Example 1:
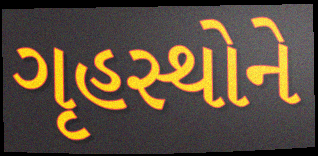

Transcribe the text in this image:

ગૃહસ્થોને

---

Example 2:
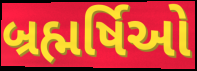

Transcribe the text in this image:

બ્રહ્મર્ષિઓ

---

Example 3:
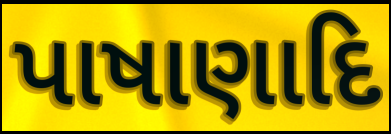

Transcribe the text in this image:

પાષાણાદિ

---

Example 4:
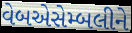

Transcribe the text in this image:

વેબએસેમ્બલીને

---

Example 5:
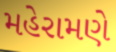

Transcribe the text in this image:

મહેરામણે